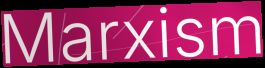
Marxism